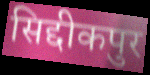
सिद्दीकपुर